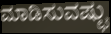
ಮಾಡಿಸುವಷ್ಟು